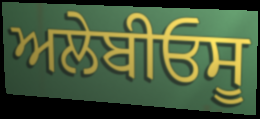
ਅਲੇਬੀਓਸੂ